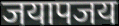
जयापजय